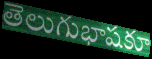
తెలుగుభాషకూ